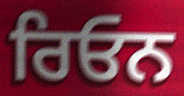
ਰਿਓਨ